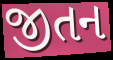
જીતન